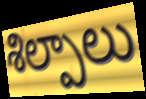
శిల్పాలు